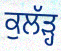
ਕੁਲੱੜ੍ਹ